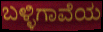
ಬಳ್ಳಿಗಾವೆಯ